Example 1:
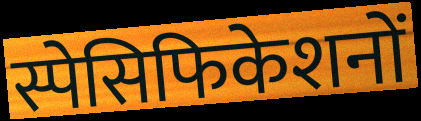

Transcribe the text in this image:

स्पेसिफिकेशनों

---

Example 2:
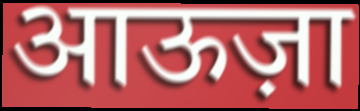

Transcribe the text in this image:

आऊज़ा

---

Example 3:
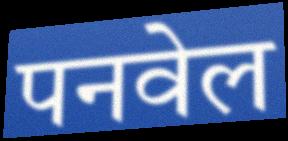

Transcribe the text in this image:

पनवेल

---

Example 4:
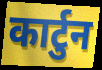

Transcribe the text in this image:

कार्टुन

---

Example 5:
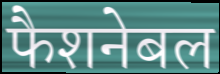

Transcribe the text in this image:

फैशनेबल